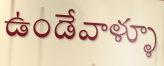
ఉండేవాళ్ళూ